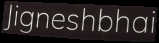
Jigneshbhai